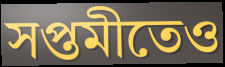
সপ্তমীতেও